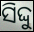
ସିଦ୍ଦୁ